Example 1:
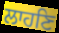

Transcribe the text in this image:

ਲਾਹਣਿ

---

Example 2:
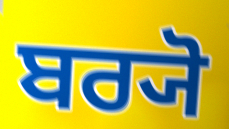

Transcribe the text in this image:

ਬਰ੍ਯੋ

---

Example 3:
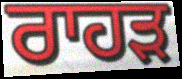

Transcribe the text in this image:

ਰਾਹੜ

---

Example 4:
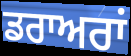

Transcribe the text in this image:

ਡਰਾਅਰਾਂ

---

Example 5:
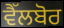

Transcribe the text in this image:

ਵੈੱਲਬੋਰ